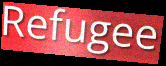
Refugee